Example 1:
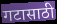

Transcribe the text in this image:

गटासाठी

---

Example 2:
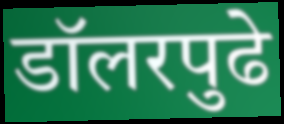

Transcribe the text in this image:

डॉलरपुढे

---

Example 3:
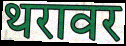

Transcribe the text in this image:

थरावर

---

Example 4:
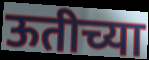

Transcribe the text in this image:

ऊतीच्या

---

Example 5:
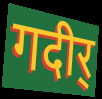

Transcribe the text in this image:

गदीर्